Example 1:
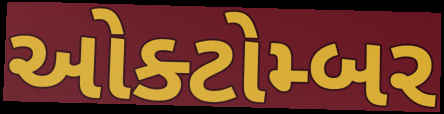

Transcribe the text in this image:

ઓક્ટોમ્બર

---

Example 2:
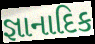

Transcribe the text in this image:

જ્ઞાનાદિક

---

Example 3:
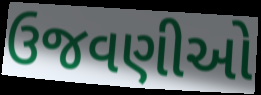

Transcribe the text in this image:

ઉજવણીઓ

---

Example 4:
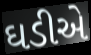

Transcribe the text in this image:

ઘડીએ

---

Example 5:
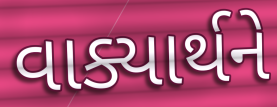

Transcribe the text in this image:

વાક્યાર્થને